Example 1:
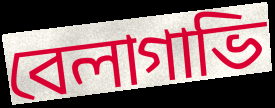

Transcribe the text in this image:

বেলাগাভি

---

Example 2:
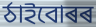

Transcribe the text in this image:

ঠাইবোৰৰ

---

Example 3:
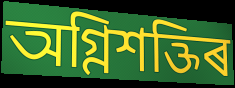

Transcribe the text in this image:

অগ্নিশক্তিৰ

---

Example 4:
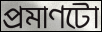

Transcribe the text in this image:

প্ৰমাণটো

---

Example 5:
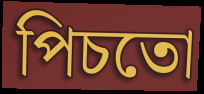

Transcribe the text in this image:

পিচতো